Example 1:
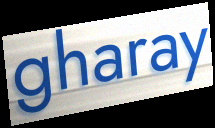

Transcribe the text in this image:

gharay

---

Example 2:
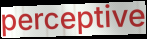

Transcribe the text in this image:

perceptive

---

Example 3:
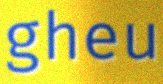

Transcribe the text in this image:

gheu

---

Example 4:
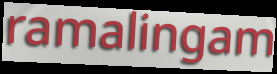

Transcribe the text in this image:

ramalingam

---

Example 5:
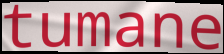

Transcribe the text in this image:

tumane